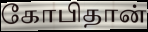
கோபிதான்